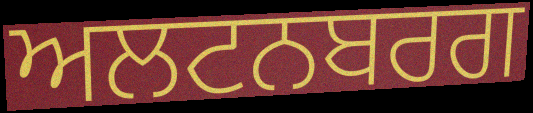
ਅਲਟਨਬਰਗ